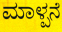
ಮಾಳ್ಪನೆ